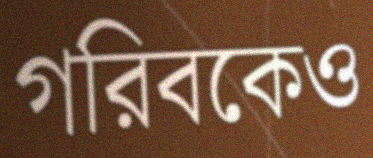
গরিবকেও